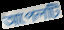
আপেলটি